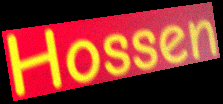
Hossen